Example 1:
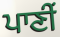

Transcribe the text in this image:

ਪਾਣੀਂ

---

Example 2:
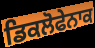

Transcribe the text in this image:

ਡਿਕਲੋਫੇਨਾਕ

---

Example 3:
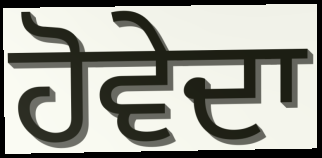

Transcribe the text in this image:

ਹੋਵੇਦਾ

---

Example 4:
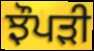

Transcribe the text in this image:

ਝੌਪੜੀ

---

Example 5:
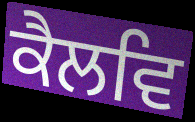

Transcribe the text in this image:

ਕੈਲਵਿ